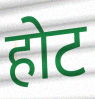
होट